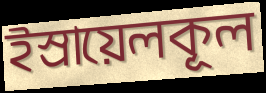
ইস্রায়েলকূল